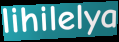
lihilelya